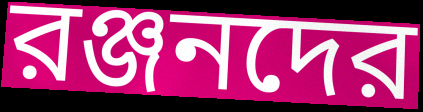
রঞ্জনদের